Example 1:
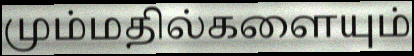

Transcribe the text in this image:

மும்மதில்களையும்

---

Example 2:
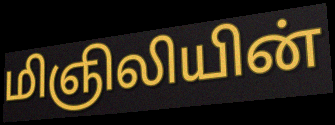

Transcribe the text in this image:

மிஞிலியின்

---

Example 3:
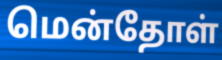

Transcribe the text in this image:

மென்தோள்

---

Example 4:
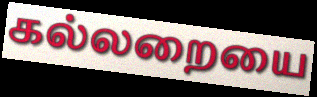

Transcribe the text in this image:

கல்லறையை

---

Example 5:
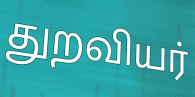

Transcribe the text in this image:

துறவியர்